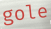
gole